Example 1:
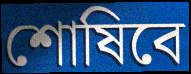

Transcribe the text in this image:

শোষিবে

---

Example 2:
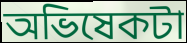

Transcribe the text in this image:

অভিষেকটা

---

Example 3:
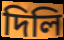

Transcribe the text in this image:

দিলি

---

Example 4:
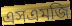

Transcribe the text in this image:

এসএমজি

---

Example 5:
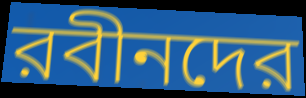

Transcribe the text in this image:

রবীনদের